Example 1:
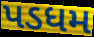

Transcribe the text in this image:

પડધમ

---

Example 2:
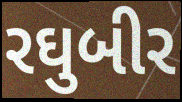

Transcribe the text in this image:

રઘુબીર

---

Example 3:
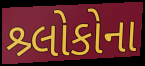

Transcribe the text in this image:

શ્ર્લોકોના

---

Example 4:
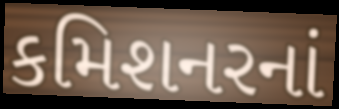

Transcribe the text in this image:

કમિશનરનાં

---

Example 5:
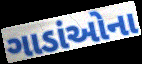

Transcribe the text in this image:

ગાડાંઓના